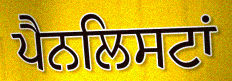
ਪੈਨਲਿਸਟਾਂ